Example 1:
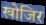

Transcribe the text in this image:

खोजिर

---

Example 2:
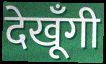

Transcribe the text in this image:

देखूँगी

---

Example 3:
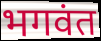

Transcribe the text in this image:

भगवंत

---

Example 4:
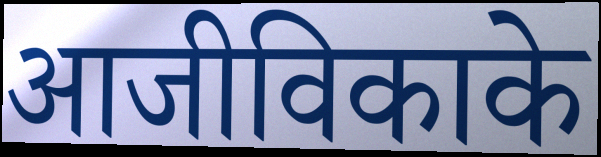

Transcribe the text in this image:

आजीविकाके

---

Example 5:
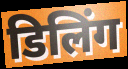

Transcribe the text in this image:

डिलिंग